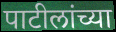
पाटीलांच्या